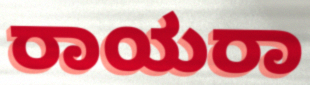
ರಾಯರಾ